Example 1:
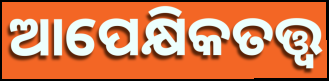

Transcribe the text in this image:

ଆପେକ୍ଷିକତତ୍ତ୍ୱ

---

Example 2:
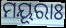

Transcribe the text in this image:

ମୟୂରାଃ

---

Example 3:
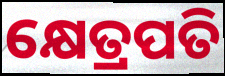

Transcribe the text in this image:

କ୍ଷେତ୍ରପତି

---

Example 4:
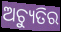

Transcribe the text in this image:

ଅଚ୍ୟୁତିର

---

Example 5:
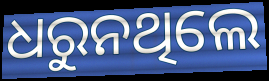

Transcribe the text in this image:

ଧରୁନଥିଲେ